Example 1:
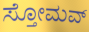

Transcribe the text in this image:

ಸ್ತೋಮವ್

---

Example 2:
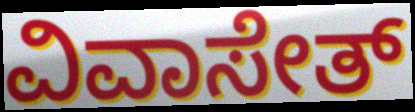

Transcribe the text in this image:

ವಿವಾಸೇತ್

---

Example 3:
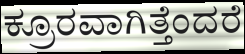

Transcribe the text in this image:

ಕ್ರೂರವಾಗಿತ್ತೆಂದರೆ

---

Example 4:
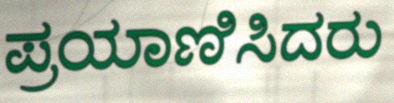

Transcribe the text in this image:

ಪ್ರಯಾಣಿಸಿದರು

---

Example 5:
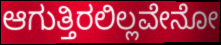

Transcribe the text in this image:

ಆಗುತ್ತಿರಲಿಲ್ಲವೇನೋ